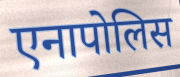
एनापोलिस